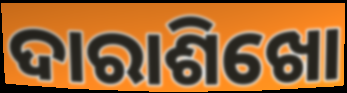
ଦାରାଶିଖୋ